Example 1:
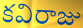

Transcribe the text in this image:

కవిరాజు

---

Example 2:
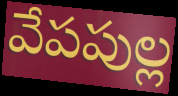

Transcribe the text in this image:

వేపపుల్ల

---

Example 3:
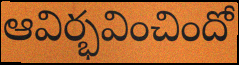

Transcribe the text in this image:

ఆవిర్భవించిందో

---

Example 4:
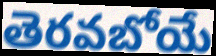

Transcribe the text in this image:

తెరవబోయే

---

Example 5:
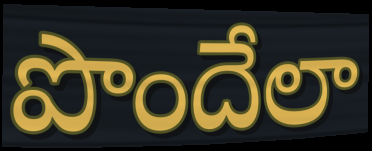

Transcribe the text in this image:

పొందేలా